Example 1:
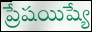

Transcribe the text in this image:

ప్రేషయిష్యే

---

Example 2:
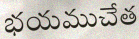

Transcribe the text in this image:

భయముచేత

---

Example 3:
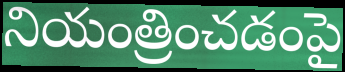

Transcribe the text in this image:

నియంత్రించడంపై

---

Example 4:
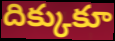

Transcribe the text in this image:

దిక్కుకూ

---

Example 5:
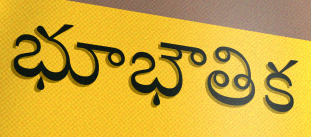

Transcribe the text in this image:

భూభౌతిక